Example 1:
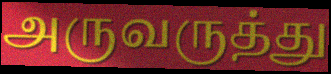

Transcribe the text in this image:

அருவருத்து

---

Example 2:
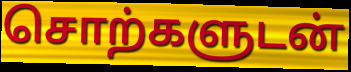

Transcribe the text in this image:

சொற்களுடன்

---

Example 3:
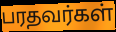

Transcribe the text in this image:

பரதவர்கள்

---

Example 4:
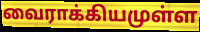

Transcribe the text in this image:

வைராக்கியமுள்ள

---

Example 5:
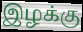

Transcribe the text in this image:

இழக்கு